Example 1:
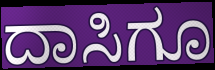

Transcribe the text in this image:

ದಾಸಿಗೂ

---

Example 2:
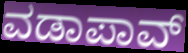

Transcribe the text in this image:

ವಡಾಪಾವ್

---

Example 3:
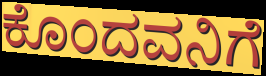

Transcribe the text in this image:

ಕೊಂದವನಿಗೆ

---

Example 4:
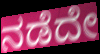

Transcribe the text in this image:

ನಡೆದೇ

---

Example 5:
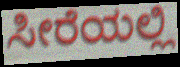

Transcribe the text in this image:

ಸೀರೆಯಲ್ಲಿ